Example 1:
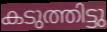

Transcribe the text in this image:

കടുത്തിട്ടു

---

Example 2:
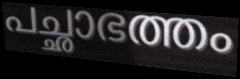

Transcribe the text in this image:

പച്ഛാഭത്തം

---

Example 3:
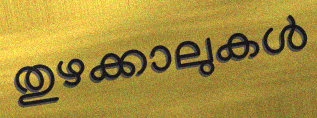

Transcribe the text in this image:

തുഴക്കാലുകൾ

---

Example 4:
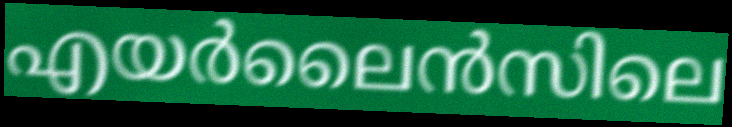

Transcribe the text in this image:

എയർലൈൻസിലെ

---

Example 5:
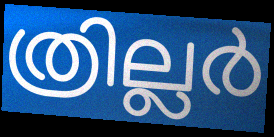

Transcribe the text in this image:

ത്രില്ലർ